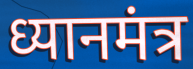
ध्यानमंत्र